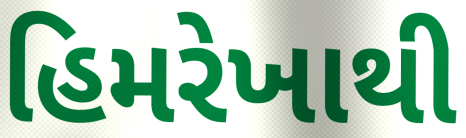
હિમરેખાથી